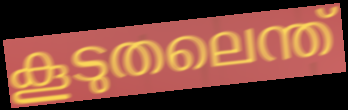
കൂടുതലെന്ത്